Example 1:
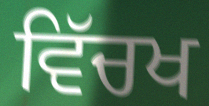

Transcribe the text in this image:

ਵਿੱਚਖ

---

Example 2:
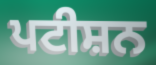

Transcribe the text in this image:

ਪਟੀਸ਼ਨ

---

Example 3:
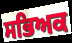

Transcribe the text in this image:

ਸਭਿਅਕ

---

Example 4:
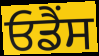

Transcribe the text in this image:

ਓਡੈਂਸ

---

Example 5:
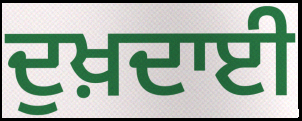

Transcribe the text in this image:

ਦੁਖ਼ਦਾਈ